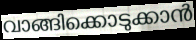
വാങ്ങിക്കൊടുക്കാൻ